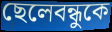
ছেলেবন্ধুকে